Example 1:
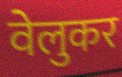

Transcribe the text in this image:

वेलुकर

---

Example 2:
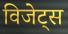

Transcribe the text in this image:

विजेट्स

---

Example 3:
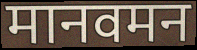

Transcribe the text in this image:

मानवमन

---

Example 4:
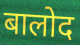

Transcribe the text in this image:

बालोद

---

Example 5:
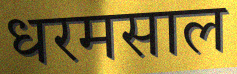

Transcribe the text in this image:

धरमसाल